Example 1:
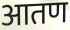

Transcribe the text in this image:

आतण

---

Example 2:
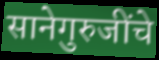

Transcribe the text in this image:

सानेगुरुजींचे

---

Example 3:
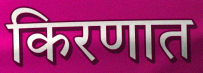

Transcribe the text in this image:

किरणात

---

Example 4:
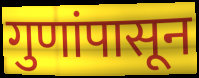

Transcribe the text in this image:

गुणांपासून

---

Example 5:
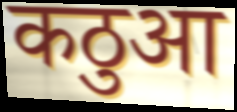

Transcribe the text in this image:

कठुआ